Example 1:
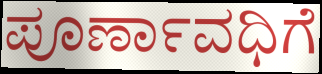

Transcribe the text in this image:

ಪೂರ್ಣಾವಧಿಗೆ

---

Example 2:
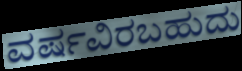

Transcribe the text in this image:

ವರ್ಷವಿರಬಹುದು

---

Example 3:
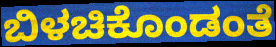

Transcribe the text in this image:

ಬಿಳಚಿಕೊಂಡಂತೆ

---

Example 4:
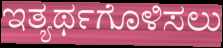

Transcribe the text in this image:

ಇತ್ಯರ್ಥಗೊಳಿಸಲು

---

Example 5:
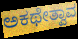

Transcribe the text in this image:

ಅಕಥೇತ್ವಾವ